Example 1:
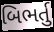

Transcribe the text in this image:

બિભર્તુ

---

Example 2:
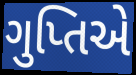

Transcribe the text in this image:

ગુપ્તિએ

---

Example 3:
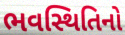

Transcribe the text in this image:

ભવસ્થિતિનો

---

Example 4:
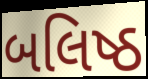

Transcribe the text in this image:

બલિષ્ઠ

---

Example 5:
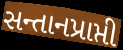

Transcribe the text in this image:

સન્તાનપ્રાપ્તી